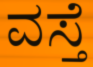
ವಸ್ತೆ